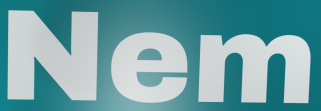
Nem